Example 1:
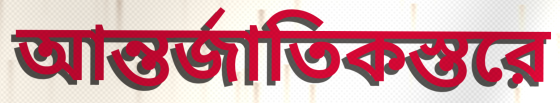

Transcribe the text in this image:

আন্তর্জাতিকস্তরে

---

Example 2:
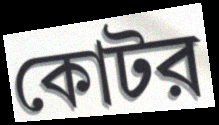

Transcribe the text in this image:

কোটর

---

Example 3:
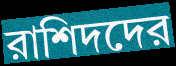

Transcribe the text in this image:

রাশিদদের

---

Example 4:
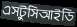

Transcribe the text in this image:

এসটুসিআইডি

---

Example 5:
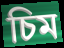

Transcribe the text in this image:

চিম